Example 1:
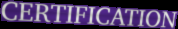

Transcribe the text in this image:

CERTIFICATION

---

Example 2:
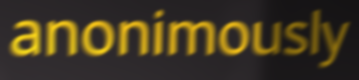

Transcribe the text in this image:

anonimously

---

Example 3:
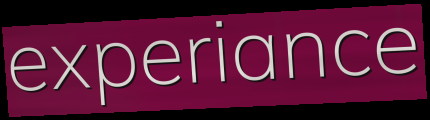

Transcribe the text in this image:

experiance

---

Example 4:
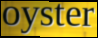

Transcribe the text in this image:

oyster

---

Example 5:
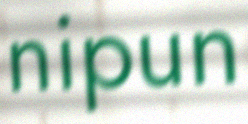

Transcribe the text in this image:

nipun